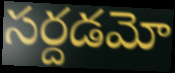
సర్దడమో